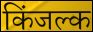
किंजल्क